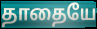
தாதையே